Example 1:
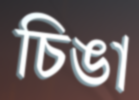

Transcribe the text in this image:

চিঙা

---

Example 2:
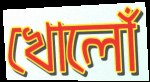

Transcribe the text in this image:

খোলোঁ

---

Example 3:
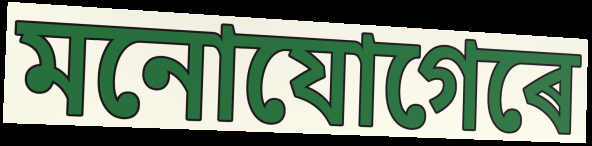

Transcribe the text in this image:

মনোযোগেৰে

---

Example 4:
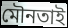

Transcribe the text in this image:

মৌনতাই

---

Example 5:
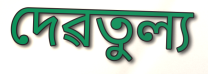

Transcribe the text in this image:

দেৱতুল্য